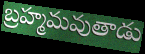
బ్రహ్మమవుతాడు